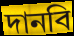
দানবি